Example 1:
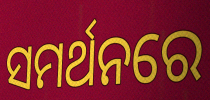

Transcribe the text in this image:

ସମର୍ଥନରେ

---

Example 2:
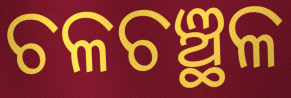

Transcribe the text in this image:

ଚଳଚଞ୍ଛଳ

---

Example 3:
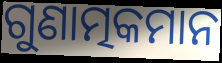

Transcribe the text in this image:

ଗୁଣାତ୍ମକମାନ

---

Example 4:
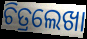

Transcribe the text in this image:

ଚିତ୍ରଲେଖା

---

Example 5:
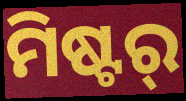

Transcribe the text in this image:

ମିଷ୍ଟର୍